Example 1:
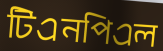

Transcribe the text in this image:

টিএনপিএল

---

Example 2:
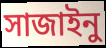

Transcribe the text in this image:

সাজাইনু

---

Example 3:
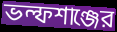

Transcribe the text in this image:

ভল্ফশাঞ্জের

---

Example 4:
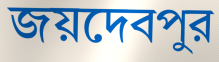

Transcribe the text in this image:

জয়দেবপুর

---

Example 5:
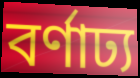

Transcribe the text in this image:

বর্ণাঢ্য